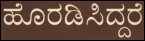
ಹೊರಡಿಸಿದ್ದರೆ